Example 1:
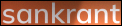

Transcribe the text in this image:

sankrant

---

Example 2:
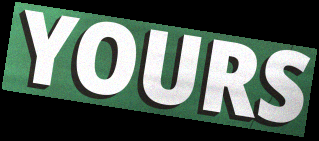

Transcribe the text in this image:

YOURS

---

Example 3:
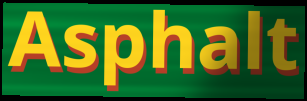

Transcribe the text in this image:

Asphalt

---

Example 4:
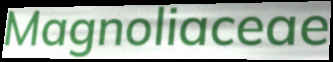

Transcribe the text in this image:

Magnoliaceae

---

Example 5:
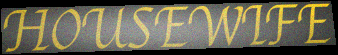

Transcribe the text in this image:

HOUSEWIFE